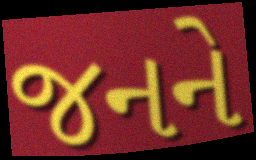
જનને